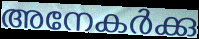
അനേകർക്കു